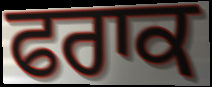
ਫਰਾਕ